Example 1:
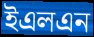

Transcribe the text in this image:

ইএলএন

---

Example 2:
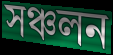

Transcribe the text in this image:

সঞ্চলন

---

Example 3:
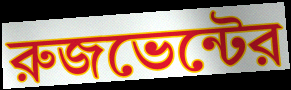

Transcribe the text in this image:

রুজভেন্টের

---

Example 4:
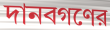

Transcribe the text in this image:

দানবগণের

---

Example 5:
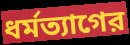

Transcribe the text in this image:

ধর্মত্যাগের